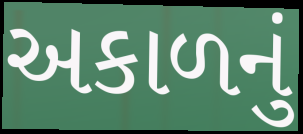
અકાળનું